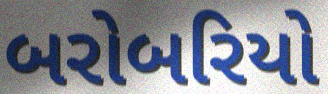
બરોબરિયો